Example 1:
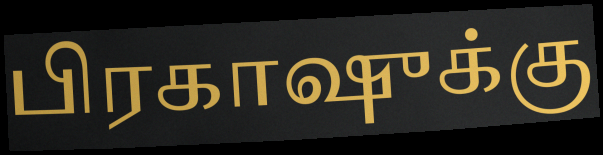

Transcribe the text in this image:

பிரகாஷுக்கு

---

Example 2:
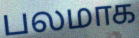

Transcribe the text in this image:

பலமாக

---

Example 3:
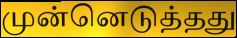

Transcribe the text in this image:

முன்னெடுத்தது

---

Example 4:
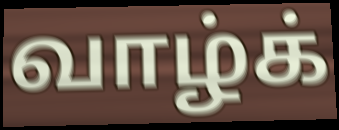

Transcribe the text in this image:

வாழ்க்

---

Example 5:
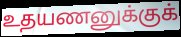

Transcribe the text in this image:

உதயணனுக்குக்